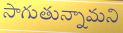
సాగుతున్నామని